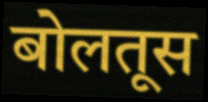
बोलतूस